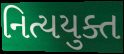
નિત્યયુક્ત